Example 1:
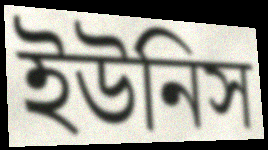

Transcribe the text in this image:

ইউনিস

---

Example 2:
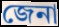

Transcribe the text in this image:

জেনা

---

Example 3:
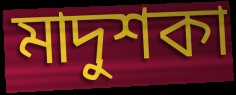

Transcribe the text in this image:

মাদুশকা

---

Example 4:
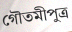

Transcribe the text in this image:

গৌতমীপুত্র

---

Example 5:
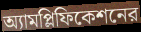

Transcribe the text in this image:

অ্যামপ্লিফিকেশনের